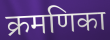
क्रमणिका